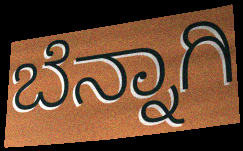
ಬೆನ್ನಾಗಿ